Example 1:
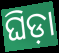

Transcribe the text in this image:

ଘିଡ଼ା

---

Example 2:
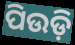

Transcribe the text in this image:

ପିଉଡ଼ି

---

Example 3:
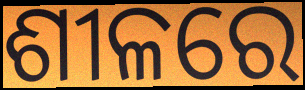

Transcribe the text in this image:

ଶୀଳରେ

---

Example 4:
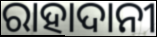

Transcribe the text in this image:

ରାହାଦାନୀ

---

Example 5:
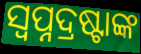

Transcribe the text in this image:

ସ୍ୱପ୍ନଦ୍ରଷ୍ଟାଙ୍କ